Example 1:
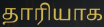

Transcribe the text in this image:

தாரியாக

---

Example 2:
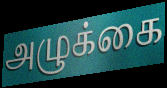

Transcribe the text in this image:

அழுக்கை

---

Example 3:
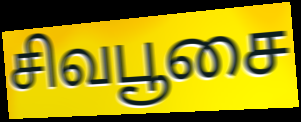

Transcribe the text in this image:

சிவபூசை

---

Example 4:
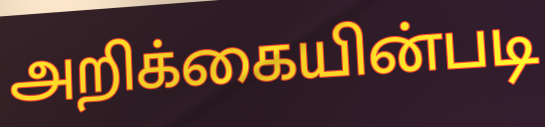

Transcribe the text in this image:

அறிக்கையின்படி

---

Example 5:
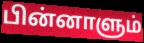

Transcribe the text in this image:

பின்னாளும்